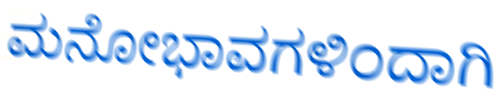
ಮನೋಭಾವಗಳಿಂದಾಗಿ